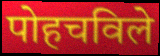
पोहचविले